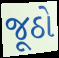
જૂઠો